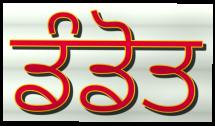
ਡੰਡੋਤ